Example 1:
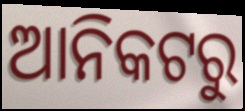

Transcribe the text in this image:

ଆନିକଟରୁ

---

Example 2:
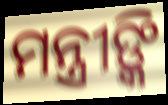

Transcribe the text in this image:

ମନ୍ତ୍ରୀଙ୍କି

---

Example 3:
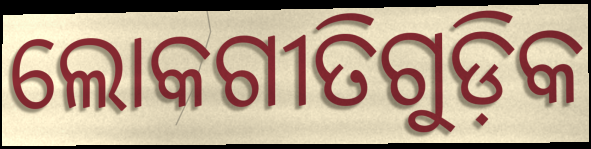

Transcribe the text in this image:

ଲୋକଗୀତିଗୁଡ଼ିକ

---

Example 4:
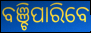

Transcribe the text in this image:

ବଞ୍ଚିପାରିବେ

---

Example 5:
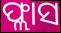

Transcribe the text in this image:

ଫ୍ଲାସ